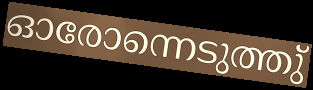
ഓരോന്നെടുത്തു്